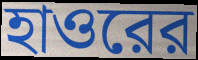
হাওরের